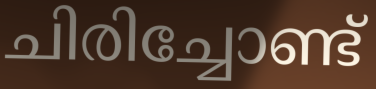
ചിരിച്ചോണ്ട്